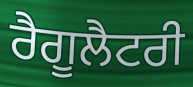
ਰੈਗੂਲੈਟਰੀ